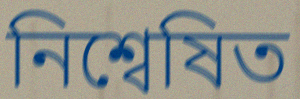
নিশ্বেষিত